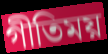
গীতিময়